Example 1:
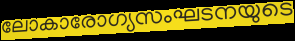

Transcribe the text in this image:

ലോകാരോഗ്യസംഘടനയുടെ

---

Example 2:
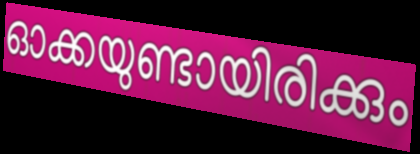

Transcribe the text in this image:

ഓക്കയുണ്ടായിരിക്കും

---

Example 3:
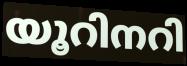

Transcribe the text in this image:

യൂറിനറി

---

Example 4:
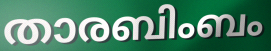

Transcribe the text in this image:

താരബിംബം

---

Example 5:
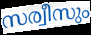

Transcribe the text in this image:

സര്വീസും